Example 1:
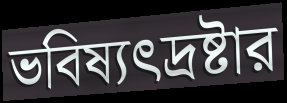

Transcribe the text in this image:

ভবিষ্যৎদ্রষ্টার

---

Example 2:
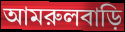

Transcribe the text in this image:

আমরুলবাড়ি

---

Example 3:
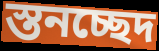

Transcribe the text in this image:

স্তনচ্ছেদ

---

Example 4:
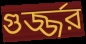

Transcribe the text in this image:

গুর্জ্জর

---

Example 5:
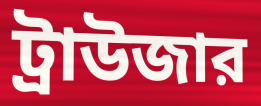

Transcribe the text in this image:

ট্রাউজার